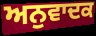
ਅਨੁਵਾਦਕ